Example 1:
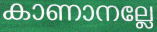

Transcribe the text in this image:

കാണാനല്ലേ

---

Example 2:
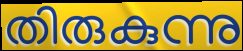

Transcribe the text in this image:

തിരുകുന്നു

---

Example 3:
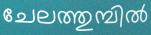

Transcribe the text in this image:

ചേലത്തുമ്പിൽ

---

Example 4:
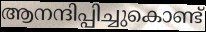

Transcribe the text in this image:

ആനന്ദിപ്പിച്ചുകൊണ്ട്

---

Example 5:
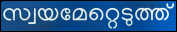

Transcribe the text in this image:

സ്വയമേറ്റെടുത്ത്